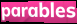
parables